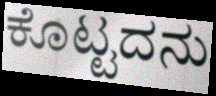
ಕೊಟ್ಟದನು